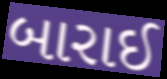
બારાઈ